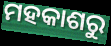
ମହକାଶରୁ